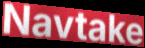
Navtake